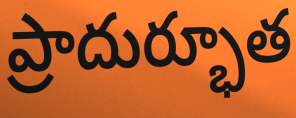
ప్రాదుర్భూత